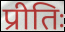
प्रीतिः